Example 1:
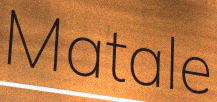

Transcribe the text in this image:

Matale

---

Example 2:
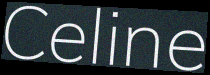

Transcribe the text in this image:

Celine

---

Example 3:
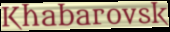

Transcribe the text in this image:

Khabarovsk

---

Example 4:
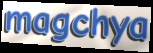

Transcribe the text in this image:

magchya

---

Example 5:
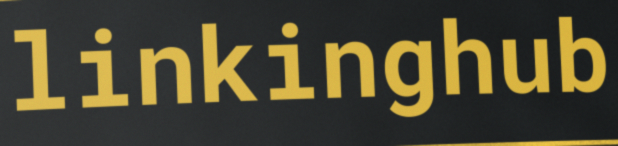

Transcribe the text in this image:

linkinghub